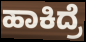
ಹಾಕಿದ್ರೆ